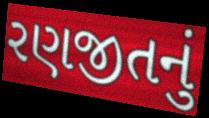
રણજીતનું